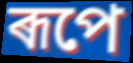
ৰূপে